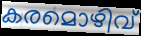
കരമൊഴിവ്